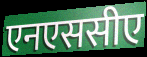
एनएससीए